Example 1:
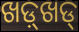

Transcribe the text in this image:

ଖଡ଼୍‌ଖଡ୍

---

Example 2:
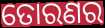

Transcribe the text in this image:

ତୋରଣର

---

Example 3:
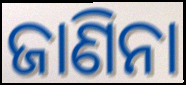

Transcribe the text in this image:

ଜାଣିନା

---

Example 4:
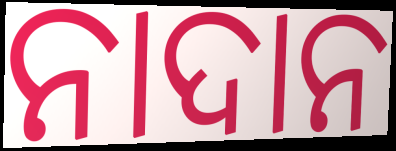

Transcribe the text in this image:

ନାଦାନ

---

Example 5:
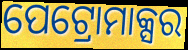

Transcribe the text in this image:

ପେଟ୍ରୋମାକ୍ସର